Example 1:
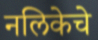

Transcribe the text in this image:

नलिकेचे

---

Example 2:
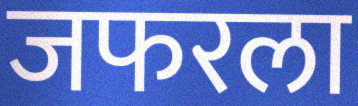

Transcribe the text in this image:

जफरला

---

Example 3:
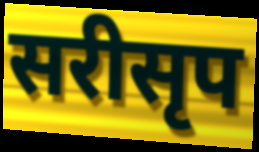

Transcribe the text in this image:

सरीसृप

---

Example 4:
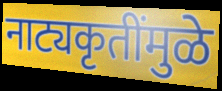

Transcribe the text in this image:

नाट्यकृतींमुळे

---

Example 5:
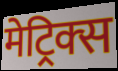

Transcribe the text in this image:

मेट्रिक्‍स